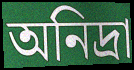
অনিদ্রা